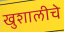
खुशालीचे